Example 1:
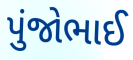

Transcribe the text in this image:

પુંજોભાઈ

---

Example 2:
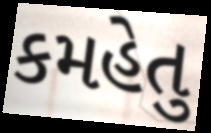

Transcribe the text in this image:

કમહેતુ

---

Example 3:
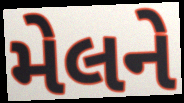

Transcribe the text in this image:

મેલને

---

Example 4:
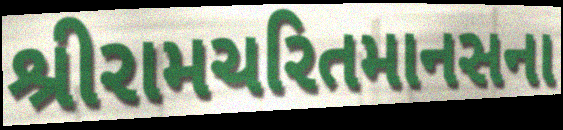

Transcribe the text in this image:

શ્રીરામચરિતમાનસના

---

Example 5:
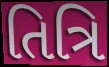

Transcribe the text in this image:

તિત્રિ